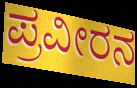
ಪ್ರವೀರನ